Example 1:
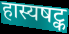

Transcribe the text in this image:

हास्यषट्क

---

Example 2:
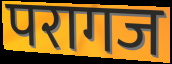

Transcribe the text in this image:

परागज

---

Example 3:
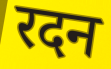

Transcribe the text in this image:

रदन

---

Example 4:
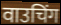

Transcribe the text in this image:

वाउचिंग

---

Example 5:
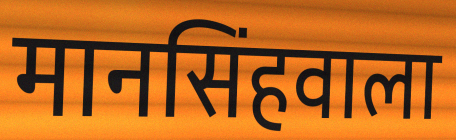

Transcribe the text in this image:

मानसिंहवाला